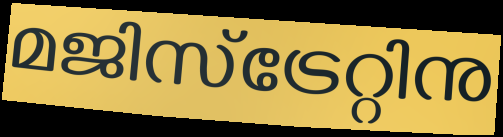
മജിസ്ട്രേറ്റിനു